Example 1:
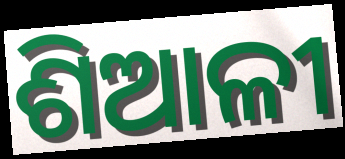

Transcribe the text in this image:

ଶିଆଳୀ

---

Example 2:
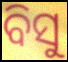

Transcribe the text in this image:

ବିସୁ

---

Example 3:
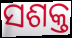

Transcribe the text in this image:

ସଶକ୍ତ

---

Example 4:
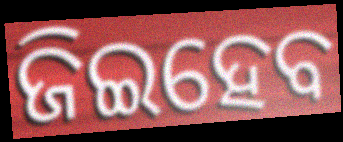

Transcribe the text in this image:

ଜିଇହେବ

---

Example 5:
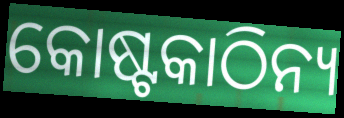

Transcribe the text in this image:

କୋଷ୍ଟକାଠିନ୍ୟ